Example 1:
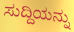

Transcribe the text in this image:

ಸುದ್ದಿಯನ್ನು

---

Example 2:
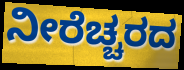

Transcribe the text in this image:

ನೀರೆಚ್ಚರದ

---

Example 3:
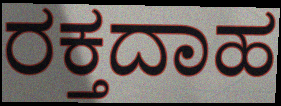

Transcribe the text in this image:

ರಕ್ತದಾಹ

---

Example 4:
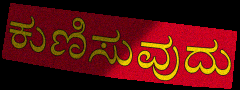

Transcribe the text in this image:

ಕುಣಿಸುವುದು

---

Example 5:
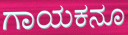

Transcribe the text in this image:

ಗಾಯಕನೂ